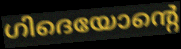
ഗിദെയോന്റെ